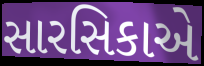
સારસિકાએ